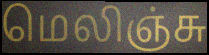
மெலிஞ்சு